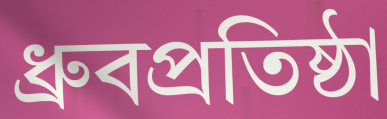
ধ্রুবপ্রতিষ্ঠা